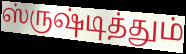
ஸ்ருஷ்டித்தும்